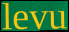
levu